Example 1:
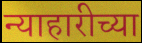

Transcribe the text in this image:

न्याहारीच्या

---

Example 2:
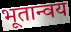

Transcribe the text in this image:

भूतान्वय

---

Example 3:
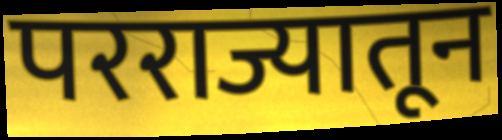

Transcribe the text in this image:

परराज्यातून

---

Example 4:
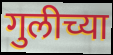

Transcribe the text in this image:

गुलीच्या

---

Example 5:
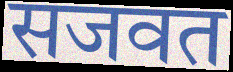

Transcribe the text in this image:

सजवत